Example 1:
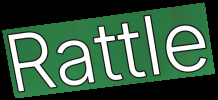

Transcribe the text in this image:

Rattle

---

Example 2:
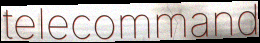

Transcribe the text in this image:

telecommand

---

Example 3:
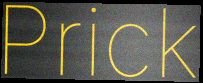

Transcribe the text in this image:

Prick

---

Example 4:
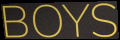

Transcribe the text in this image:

BOYS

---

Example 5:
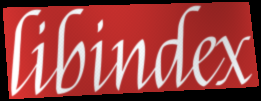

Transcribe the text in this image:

libindex